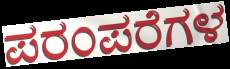
ಪರಂಪರೆಗಳ